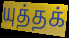
யுத்தக்